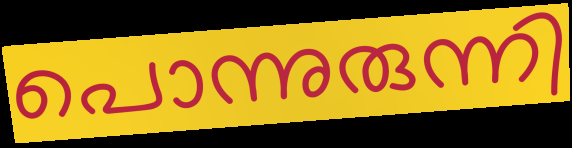
പൊന്നുരുന്നി